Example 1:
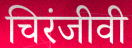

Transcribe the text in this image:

चिरंजीवी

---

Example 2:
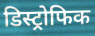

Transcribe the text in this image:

डिस्ट्रोफिक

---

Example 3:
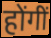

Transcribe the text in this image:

होंगीं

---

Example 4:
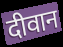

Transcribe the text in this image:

दीवान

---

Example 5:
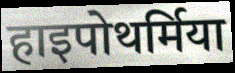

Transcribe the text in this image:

हाइपोथर्मिया